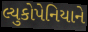
લ્યુકોપેનિયાને